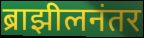
ब्राझीलनंतर